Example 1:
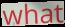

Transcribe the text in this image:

what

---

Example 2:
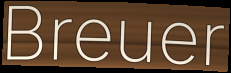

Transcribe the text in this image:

Breuer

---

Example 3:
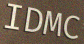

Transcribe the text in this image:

IDMC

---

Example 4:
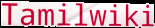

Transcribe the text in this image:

Tamilwiki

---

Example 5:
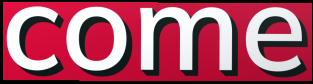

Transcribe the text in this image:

come